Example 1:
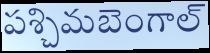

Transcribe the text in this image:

పశ్చిమబెంగాల్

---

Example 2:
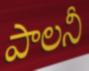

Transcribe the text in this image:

పాలనీ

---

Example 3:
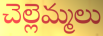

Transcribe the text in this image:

చెల్లెమ్మలు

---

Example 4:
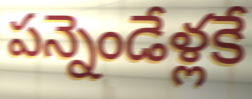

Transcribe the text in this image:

పన్నెండేళ్లకే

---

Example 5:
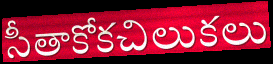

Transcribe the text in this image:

సీతాకోకచిలుకలు